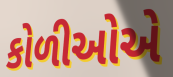
કોળીઓએ